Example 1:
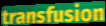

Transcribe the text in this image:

transfusion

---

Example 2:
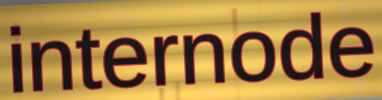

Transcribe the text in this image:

internode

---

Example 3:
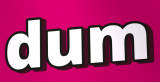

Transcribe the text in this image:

dum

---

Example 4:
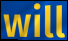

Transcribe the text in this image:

will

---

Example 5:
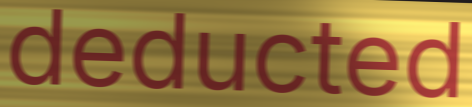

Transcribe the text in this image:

deducted